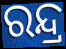
ରନ୍ଦ୍ର